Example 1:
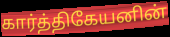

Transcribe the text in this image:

கார்த்திகேயனின்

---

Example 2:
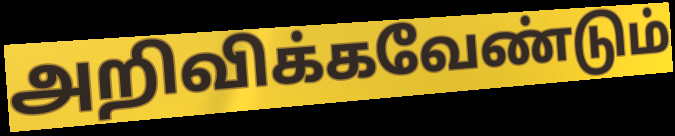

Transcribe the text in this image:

அறிவிக்கவேண்டும்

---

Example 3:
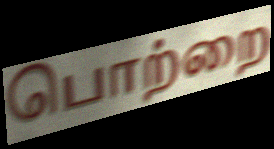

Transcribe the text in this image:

பொற்றை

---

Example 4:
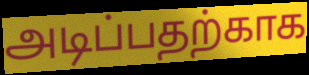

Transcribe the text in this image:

அடிப்பதற்காக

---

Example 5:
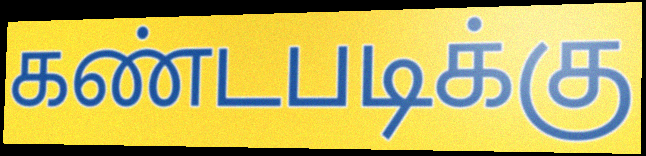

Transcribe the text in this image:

கண்டபடிக்கு